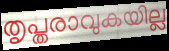
തൃപ്തരാവുകയില്ല